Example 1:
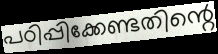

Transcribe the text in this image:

പഠിപ്പിക്കേണ്ടതിന്റെ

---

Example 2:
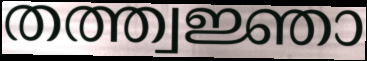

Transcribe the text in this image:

തത്ത്വജ്ഞാ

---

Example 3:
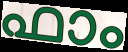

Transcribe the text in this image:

ഫാം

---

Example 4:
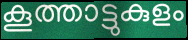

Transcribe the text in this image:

കൂത്താട്ടുകുളം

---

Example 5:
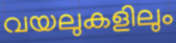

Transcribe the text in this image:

വയലുകളിലും